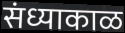
संध्याकाळ